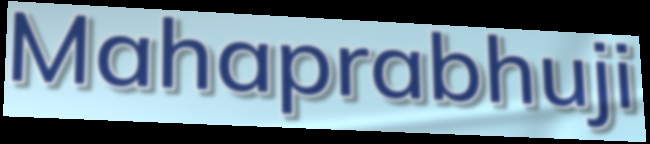
Mahaprabhuji